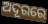
ଅଦୂରରେ